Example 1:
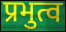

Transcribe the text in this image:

प्रभुत्व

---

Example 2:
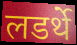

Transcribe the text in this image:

लडर्थे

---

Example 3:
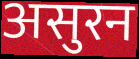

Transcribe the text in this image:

असुरन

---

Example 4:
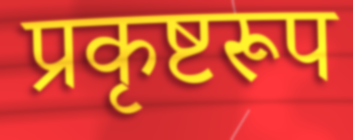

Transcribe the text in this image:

प्रकृष्टरूप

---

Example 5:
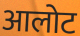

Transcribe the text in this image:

आलोट